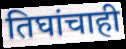
तिघांचाही